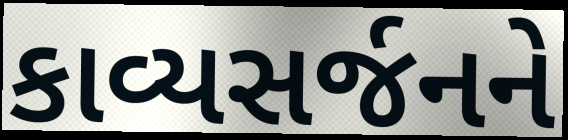
કાવ્યસર્જનને